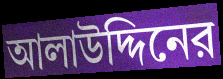
আলাউদ্দিনের